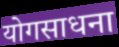
योगसाधना